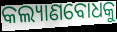
କଲ୍ୟାଣବୋଧକୁ